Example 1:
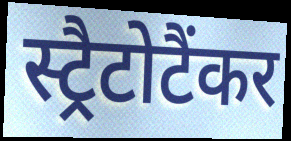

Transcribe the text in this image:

स्ट्रैटोटैंकर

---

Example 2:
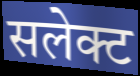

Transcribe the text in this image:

सलेक्ट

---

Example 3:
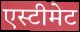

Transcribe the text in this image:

एस्‍टीमेट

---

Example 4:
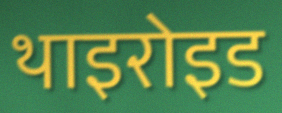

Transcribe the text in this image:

थाइरोइड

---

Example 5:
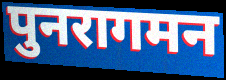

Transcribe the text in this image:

पुनरागमन